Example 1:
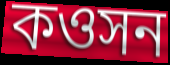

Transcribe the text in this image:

কওসন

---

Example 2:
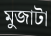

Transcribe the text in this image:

মুজাটা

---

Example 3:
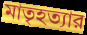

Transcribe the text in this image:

মাতৃহত্যার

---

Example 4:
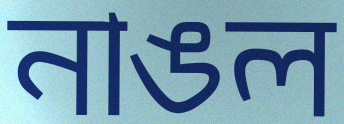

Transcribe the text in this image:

নাঙল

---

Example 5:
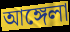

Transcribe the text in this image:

আঙ্গেলা